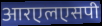
आरएलएसपी